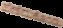
ಹೆಣೆದುಕೊಂಡು